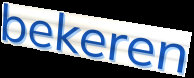
bekeren